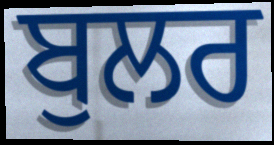
ਬੁਲਰ